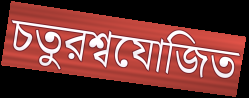
চতুরশ্বযোজিত